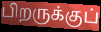
பிறருக்குப்